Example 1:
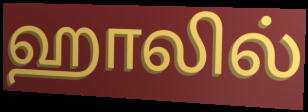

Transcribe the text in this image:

ஹாலில்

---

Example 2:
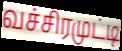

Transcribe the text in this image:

வச்சிரமுட்டி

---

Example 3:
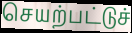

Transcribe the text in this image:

செயற்பட்டுச்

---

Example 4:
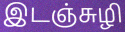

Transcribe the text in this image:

இடஞ்சுழி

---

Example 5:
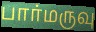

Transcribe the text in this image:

பார்மருவு